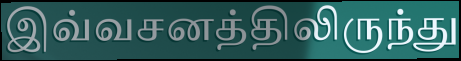
இவ்வசனத்திலிருந்து